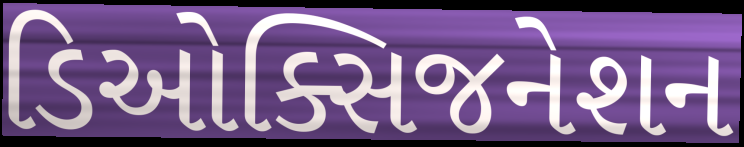
ડિઓક્સિજનેશન